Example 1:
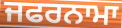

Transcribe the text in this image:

ਜਫਰਨਾਮਾ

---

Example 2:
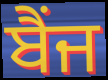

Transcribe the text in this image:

ਬੈਂਜ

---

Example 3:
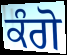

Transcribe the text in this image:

ਕੰਗੋ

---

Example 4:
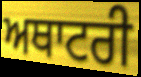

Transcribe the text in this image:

ਅਥਾਟਰੀ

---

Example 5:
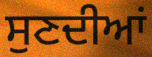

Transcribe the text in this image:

ਸੁਣਦੀਆਂ